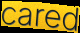
cared